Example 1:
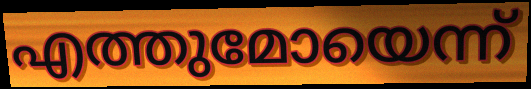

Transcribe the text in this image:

എത്തുമോയെന്ന്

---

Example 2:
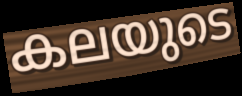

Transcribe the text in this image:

കലയുടെ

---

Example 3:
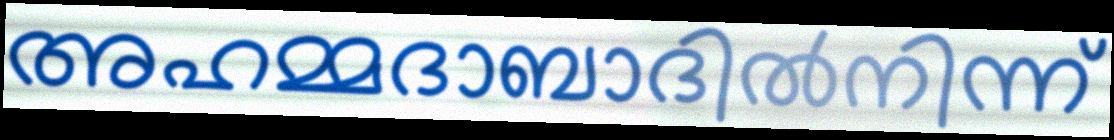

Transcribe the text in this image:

അഹമ്മദാബാദിൽനിന്ന്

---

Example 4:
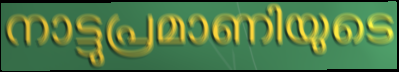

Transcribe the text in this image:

നാട്ടുപ്രമാണിയുടെ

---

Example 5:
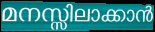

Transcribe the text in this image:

മനസ്സിലാക്കാൻ